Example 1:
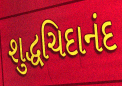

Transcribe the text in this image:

શુદ્ધચિદાનંદ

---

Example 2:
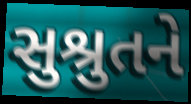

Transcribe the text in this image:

સુશ્રુતને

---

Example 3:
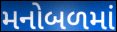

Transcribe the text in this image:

મનોબળમાં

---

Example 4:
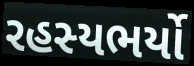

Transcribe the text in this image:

રહસ્યભર્યો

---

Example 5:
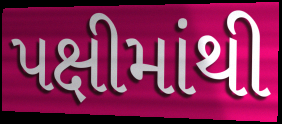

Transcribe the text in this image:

પક્ષીમાંથી